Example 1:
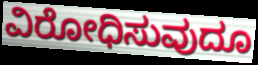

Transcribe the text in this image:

ವಿರೋಧಿಸುವುದೂ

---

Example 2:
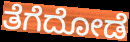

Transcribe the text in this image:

ತೆಗೆದೋಡೆ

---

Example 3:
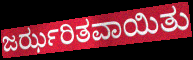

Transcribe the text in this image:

ಜರ್ಝರಿತವಾಯಿತು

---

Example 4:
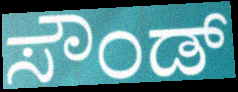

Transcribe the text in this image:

ಸೌಂಡ್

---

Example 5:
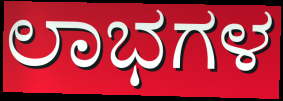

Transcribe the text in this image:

ಲಾಭಗಳ